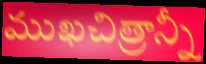
ముఖచిత్రాన్నీ